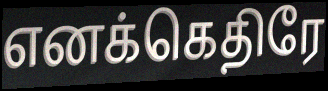
எனக்கெதிரே